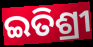
ଇତିଶ୍ରୀ